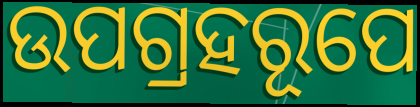
ଉପଗ୍ରହରୂପେ